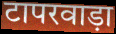
टापरवाड़ा